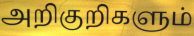
அறிகுறிகளும்